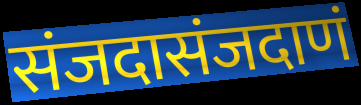
संजदासंजदाणं